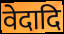
वेदादि